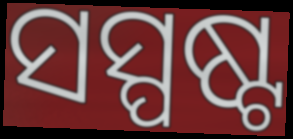
ସସ୍ପଷ୍ଟ